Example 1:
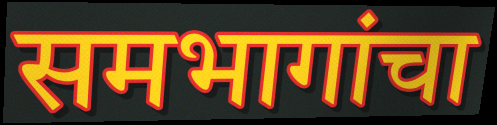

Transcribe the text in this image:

समभागांचा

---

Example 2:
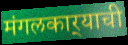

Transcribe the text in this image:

मंगलकार्याची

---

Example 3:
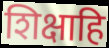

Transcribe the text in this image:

शिक्षाहि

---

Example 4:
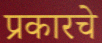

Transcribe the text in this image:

प्रकारचे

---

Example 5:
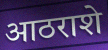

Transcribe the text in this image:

आठराशे